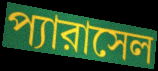
প্যারাসেল